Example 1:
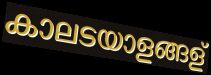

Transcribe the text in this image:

കാലടയാളങ്ങള്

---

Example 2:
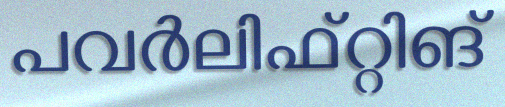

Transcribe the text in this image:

പവർലിഫ്റ്റിങ്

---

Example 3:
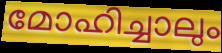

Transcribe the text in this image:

മോഹിച്ചാലും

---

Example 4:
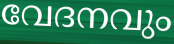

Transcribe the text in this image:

വേദനവും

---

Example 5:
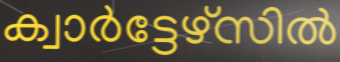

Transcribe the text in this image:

ക്വാർട്ടേഴ്സിൽ